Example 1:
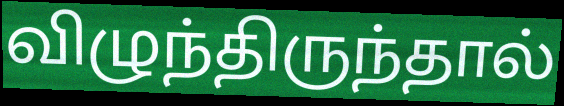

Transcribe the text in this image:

விழுந்திருந்தால்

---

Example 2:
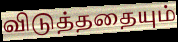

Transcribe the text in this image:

விடுத்ததையும்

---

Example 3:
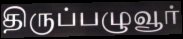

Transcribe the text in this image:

திருப்பழுவூர்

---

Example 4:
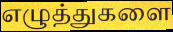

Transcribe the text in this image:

எழுத்துகளை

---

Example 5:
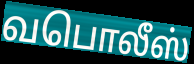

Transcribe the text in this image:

வபொலீஸ்